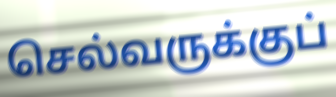
செல்வருக்குப்